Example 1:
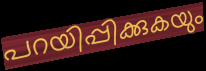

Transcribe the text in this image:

പറയിപ്പിക്കുകയും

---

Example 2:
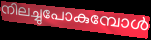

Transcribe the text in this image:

നിലച്ചുപോകുമ്പോൾ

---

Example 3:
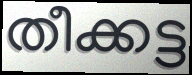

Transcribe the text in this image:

തീക്കട്ട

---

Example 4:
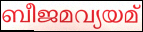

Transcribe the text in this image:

ബീജമവ്യയമ്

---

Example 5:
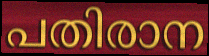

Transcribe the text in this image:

പതിരാന